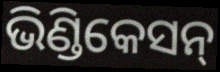
ଭିଣ୍ଡିକେସନ୍